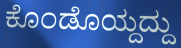
ಕೊಂಡೊಯ್ದದ್ದು